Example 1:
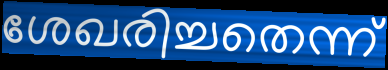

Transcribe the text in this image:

ശേഖരിച്ചതെന്ന്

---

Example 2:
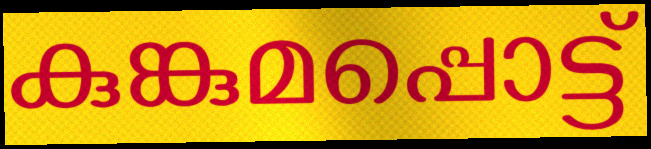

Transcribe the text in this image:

കുങ്കുമപ്പൊട്ട്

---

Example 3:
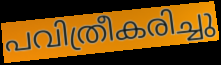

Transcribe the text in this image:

പവിത്രീകരിച്ചു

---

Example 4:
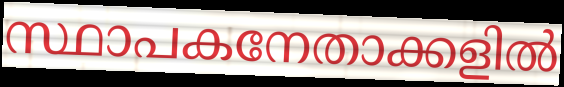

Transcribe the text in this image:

സ്ഥാപകനേതാക്കളിൽ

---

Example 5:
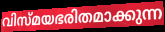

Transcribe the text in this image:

വിസ്മയഭരിതമാക്കുന്ന